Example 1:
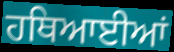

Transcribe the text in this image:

ਹਥਿਆਈਆਂ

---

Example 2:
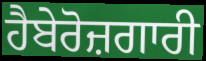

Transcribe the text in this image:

ਹੈਬੇਰੋਜ਼ਗਾਰੀ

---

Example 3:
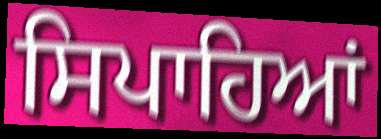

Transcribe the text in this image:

ਸਿਪਾਹਿਆਂ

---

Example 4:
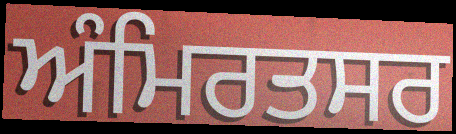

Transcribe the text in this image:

ਅੰਮਿਰਤਸਰ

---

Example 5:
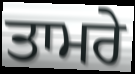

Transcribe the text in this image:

ਤਾਮਰੇ